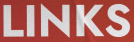
LINKS